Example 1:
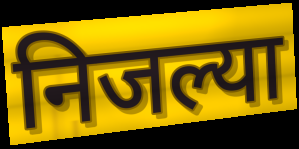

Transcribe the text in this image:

निजल्या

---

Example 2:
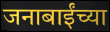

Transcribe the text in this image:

जनाबाईंच्या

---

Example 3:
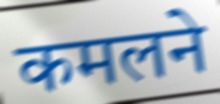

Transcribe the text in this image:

कमलने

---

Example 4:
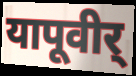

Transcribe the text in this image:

यापूवीर्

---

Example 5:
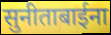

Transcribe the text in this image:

सुनीताबाईना